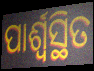
ପାର୍ଶ୍ୱସ୍ଥିତ